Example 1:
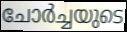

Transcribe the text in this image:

ചോർച്ചയുടെ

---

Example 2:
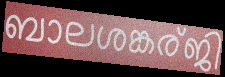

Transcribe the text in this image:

ബാലശങ്കര്ജി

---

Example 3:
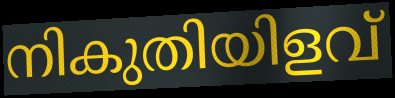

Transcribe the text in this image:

നികുതിയിളവ്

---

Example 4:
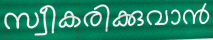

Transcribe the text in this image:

സ്വീകരിക്കുവാൻ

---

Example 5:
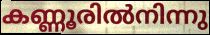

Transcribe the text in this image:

കണ്ണൂരിൽനിന്നു